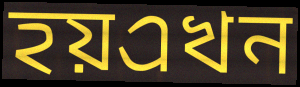
হয়এখন